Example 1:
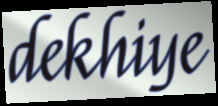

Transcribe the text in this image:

dekhiye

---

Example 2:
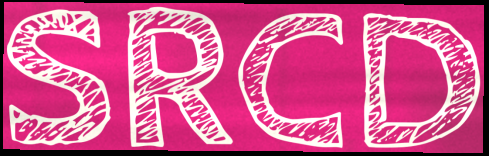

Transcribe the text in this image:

SRCD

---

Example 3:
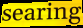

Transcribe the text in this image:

searing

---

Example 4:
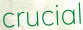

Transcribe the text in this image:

crucial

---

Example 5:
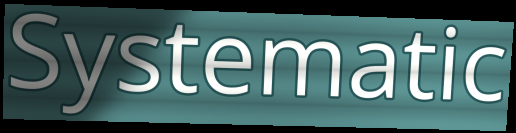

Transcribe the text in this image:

Systematic